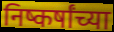
निष्कर्षांच्या